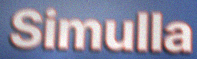
Simulla